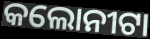
କଲୋନୀଟା